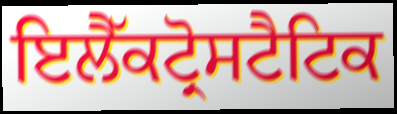
ਇਲੈੱਕਟ੍ਰੋਸਟੈਟਿਕ